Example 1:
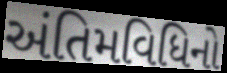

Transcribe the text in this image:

અંતિમવિધિનો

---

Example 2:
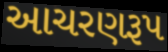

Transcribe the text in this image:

આચરણરૂપ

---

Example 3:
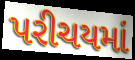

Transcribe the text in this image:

પરીચયમાં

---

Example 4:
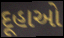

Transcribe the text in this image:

દૂહાઓ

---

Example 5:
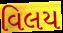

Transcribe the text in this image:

વિલય